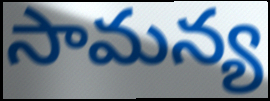
సామన్య